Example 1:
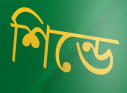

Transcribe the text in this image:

শিন্ডে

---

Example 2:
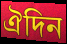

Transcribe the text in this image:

ঐদিন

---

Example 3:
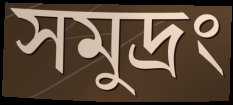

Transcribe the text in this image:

সমুদ্রং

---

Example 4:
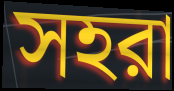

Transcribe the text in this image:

সহরা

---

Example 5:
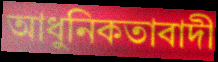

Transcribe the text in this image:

আধুনিকতাবাদী